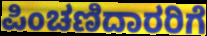
ಪಿಂಚಣಿದಾರರಿಗೆ